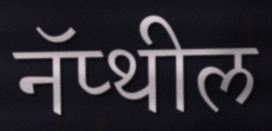
नॅप्थील